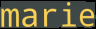
marie